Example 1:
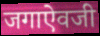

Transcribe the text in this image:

जगाऐवजी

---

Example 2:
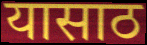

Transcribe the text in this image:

यासाठ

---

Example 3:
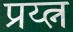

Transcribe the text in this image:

प्रय्त्न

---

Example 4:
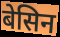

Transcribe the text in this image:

बेसिन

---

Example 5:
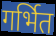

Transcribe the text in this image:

गर्भित